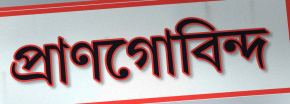
প্রাণগোবিন্দ